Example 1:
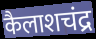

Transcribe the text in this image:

कैलाशचंद्र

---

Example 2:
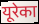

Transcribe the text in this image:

यूरेका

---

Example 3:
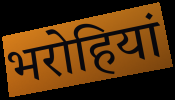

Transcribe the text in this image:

भरोहियां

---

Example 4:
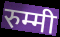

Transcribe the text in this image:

रुम्मी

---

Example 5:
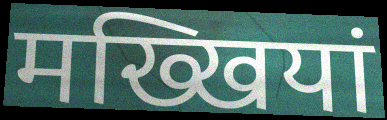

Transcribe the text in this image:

मख्खियां